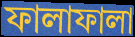
ফালাফালা